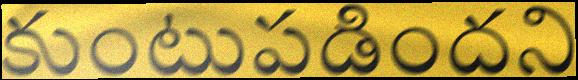
కుంటుపడిందని